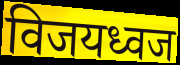
विजयध्वज